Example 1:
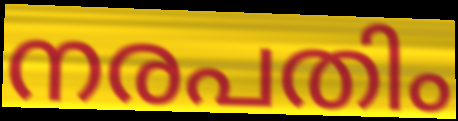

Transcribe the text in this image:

നരപതിം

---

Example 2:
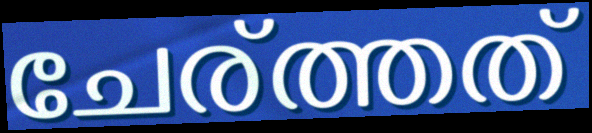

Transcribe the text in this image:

ചേര്ത്തത്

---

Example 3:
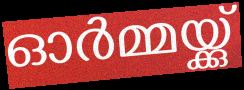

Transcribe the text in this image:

ഓർമ്മയ്ക്കു്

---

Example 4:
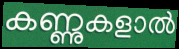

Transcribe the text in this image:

കണ്ണുകളാൽ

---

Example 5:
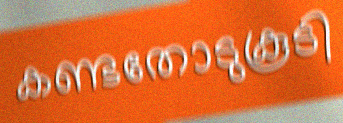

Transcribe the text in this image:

കണ്ടതോടുകൂടി